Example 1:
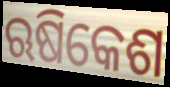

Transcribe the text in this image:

ଋଷିକେଶ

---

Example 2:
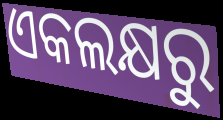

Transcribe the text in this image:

ଏକଲକ୍ଷରୁ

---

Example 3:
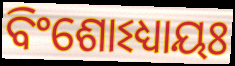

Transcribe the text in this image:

ବିଂଶୋଽଧ୍ୟାୟଃ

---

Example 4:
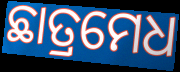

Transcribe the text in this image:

ଛାତ୍ରମେଧ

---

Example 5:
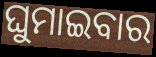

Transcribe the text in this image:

ଘୁମାଇବାର